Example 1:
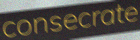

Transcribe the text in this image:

consecrate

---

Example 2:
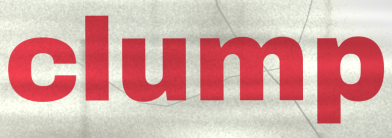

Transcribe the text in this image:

clump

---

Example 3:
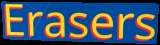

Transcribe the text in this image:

Erasers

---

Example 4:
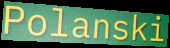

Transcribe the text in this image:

Polanski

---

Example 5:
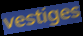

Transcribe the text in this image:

vestiges